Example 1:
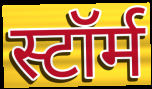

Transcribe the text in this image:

स्टॉर्म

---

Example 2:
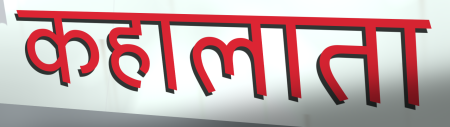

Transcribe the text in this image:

कहालाता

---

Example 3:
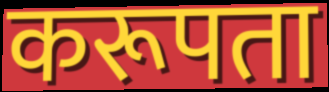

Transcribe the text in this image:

करूपता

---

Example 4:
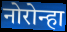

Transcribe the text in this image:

नोरोन्हा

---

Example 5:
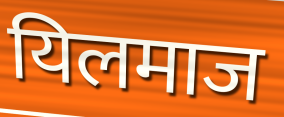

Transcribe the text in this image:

यिलमाज